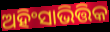
ଅହିଂସାଭିତ୍ତିକ